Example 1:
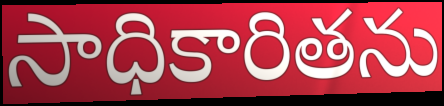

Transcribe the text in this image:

సాధికారితను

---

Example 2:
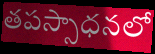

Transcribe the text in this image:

తపస్సాధనలో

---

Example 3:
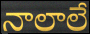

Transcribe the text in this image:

నాలాలే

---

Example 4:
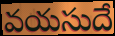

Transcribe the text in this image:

వయసుదే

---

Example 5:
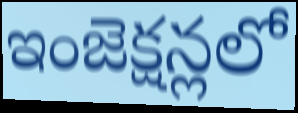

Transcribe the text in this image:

ఇంజెక్షన్లలో